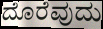
ದೊರೆವುದು